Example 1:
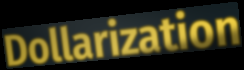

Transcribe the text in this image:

Dollarization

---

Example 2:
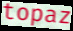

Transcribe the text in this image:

topaz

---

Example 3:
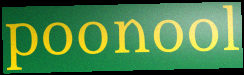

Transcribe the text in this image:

poonool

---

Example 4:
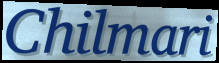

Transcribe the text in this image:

Chilmari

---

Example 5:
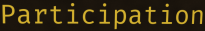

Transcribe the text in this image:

Participation